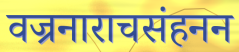
वज्रनाराचसंहनन